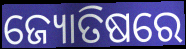
ଜ୍ୟୋତିଷରେ